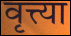
वृत्त्या